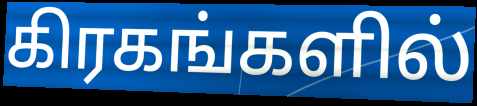
கிரகங்களில்